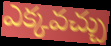
ఎక్కవచ్చు